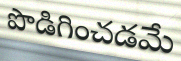
పొడిగించడమే